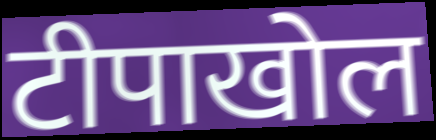
टीपाखोल